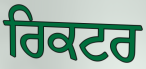
ਰਿਕਟਰ